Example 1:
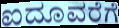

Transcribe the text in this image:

ಐದೂವರೆಗೆ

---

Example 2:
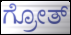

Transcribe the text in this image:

ಗ್ರೋತ್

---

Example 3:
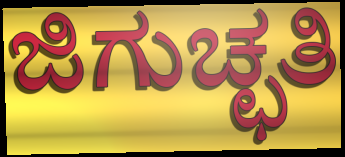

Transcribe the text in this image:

ಜಿಗುಚ್ಛತಿ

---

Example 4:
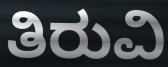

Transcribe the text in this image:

ತಿರುವಿ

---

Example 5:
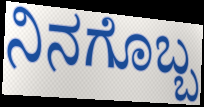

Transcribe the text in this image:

ನಿನಗೊಬ್ಬ